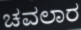
ಚವಲಾರ